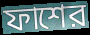
ফাশের